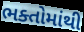
ભક્તોમાંથી